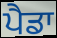
ਪੈਡਾ